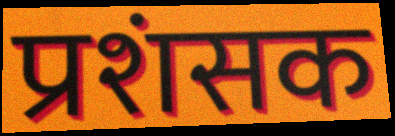
प्रशंसक